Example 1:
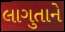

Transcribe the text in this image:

લાગુતાને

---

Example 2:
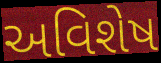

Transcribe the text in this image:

અવિશેષ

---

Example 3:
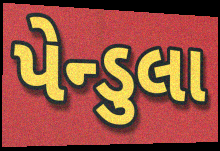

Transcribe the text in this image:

પેન્ડુલા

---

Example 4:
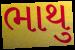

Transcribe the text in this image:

ભાથુ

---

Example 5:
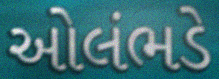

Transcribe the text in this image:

ઓલંભડે